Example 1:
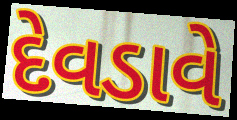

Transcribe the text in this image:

દેવડાવે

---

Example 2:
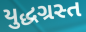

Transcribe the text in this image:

યુદ્ધગ્રસ્ત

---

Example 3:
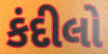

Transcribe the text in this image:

કંદીલો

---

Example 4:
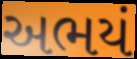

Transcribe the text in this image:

અભયં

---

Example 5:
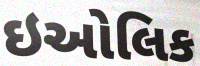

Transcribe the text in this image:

ઇઓલિક